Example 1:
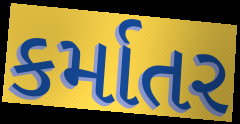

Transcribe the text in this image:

કર્માતર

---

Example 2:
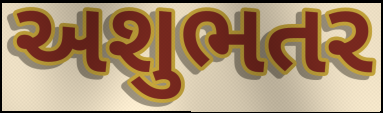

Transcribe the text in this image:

અશુભતર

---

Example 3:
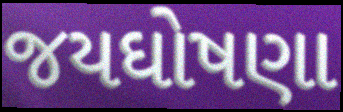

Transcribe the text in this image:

જયઘોષણા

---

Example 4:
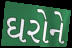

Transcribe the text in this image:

ઘરોને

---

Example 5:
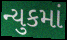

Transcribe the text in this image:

ન્યુકમાં